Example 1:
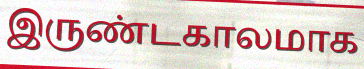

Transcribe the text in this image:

இருண்டகாலமாக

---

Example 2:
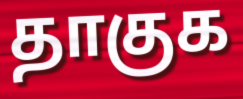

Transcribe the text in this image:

தாகுக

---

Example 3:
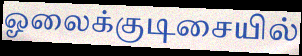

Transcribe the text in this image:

ஓலைக்குடிசையில்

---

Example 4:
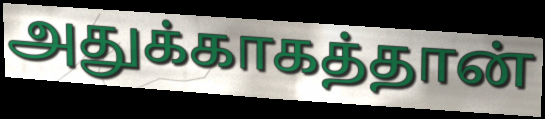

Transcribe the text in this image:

அதுக்காகத்தான்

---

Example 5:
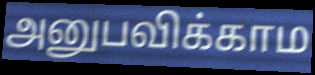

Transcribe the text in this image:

அனுபவிக்காம